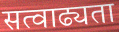
सत्वाढ्यता